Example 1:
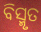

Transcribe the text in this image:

ବିସ୍ମୃତ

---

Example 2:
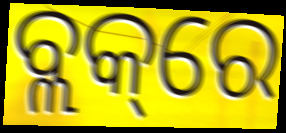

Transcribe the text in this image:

ବ୍ଲକ୍‌ରେ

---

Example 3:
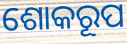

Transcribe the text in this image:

ଶୋକରୂପ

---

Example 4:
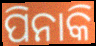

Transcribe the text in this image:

ପିନାକି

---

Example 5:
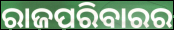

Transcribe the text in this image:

ରାଜପରିବାରର